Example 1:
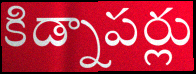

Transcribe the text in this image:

కిడ్నాపర్లు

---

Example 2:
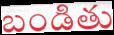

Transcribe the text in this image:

బండితు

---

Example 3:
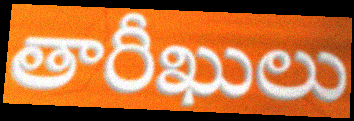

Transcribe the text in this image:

తారీఖులు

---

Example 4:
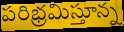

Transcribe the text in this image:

పరిభ్రమిస్తూన్న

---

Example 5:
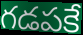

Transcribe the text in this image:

గడపకే